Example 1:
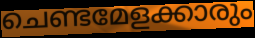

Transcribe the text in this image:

ചെണ്ടമേളക്കാരും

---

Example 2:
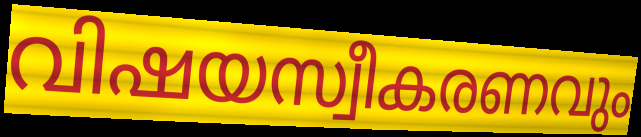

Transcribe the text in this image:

വിഷയസ്വീകരണവും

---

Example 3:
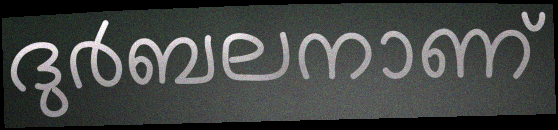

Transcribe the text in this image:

ദുർബലനാണ്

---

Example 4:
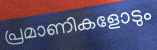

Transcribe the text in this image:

പ്രമാണികളോടും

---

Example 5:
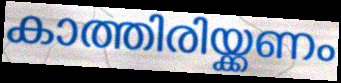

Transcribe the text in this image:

കാത്തിരിയ്ക്കണം